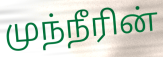
முந்நீரின்